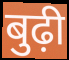
बुढ़ी